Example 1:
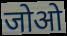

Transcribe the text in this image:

जोओ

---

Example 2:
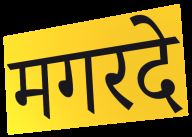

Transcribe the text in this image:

मगरदे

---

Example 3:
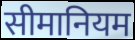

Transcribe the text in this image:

सीमानियम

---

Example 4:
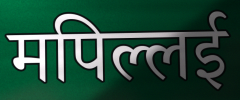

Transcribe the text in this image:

मपिल्लई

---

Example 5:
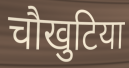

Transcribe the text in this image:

चौखुटिया